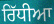
ਰਿੱਧੀਆ